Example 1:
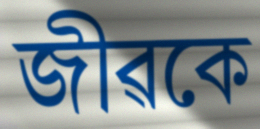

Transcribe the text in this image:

জীৱকে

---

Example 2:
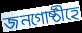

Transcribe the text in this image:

জনগোষ্ঠীহে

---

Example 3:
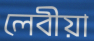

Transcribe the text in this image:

লেবীয়া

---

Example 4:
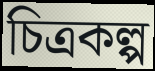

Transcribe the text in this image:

চিত্ৰকল্প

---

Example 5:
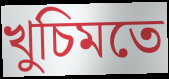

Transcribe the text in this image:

খুচিমতে